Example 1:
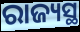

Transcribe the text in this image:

ରାଜ୍ୟସ୍ଥ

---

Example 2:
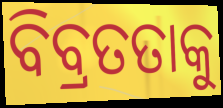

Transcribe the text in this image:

ବିବ୍ରତତାକୁ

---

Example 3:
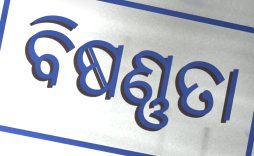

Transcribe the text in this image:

ବିଷଣ୍ଣତା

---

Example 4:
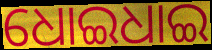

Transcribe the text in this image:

ଧୋଇଧାଇ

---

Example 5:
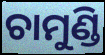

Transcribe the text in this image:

ଚାମୁଣ୍ଡି